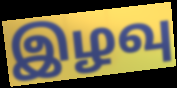
இழவு